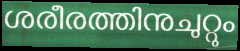
ശരീരത്തിനുചുറ്റും